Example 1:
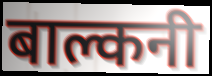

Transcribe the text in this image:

बाल्कनी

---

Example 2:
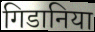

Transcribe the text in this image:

गिडानिया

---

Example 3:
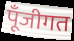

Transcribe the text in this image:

पूँजीगत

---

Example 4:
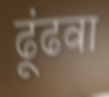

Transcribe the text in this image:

ढूंढवा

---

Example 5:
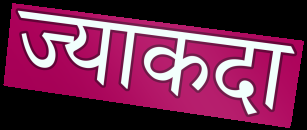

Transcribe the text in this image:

ज्याकदा